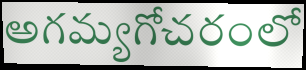
అగమ్యగోచరంలో